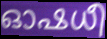
ഓഷധീ